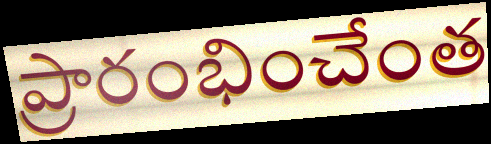
ప్రారంభించేంత